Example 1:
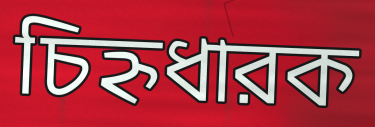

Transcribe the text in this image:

চিহ্নধারক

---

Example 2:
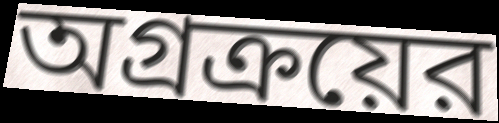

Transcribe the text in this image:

অগ্রক্রয়ের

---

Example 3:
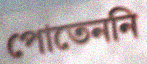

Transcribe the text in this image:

পোতেননি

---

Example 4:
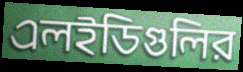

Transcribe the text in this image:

এলইডিগুলির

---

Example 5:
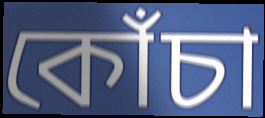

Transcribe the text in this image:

কোঁচা